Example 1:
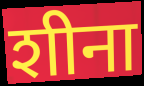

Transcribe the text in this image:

शीना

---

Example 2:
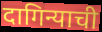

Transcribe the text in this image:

दागिन्याची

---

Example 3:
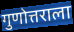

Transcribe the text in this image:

गुणोत्तराला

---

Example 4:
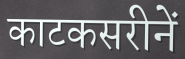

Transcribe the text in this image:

काटकसरीनें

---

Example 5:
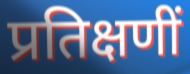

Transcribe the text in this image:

प्रतिक्षणीं